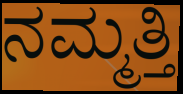
ನಮ್ಮತ್ತಿ